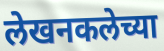
लेखनकलेच्या